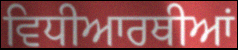
ਵਿਧੀਆਰਥੀਆਂ